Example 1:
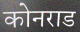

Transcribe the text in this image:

कोनराड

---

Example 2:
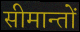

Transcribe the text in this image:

सीमान्तों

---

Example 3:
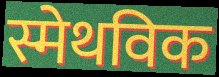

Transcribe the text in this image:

स्मेथविक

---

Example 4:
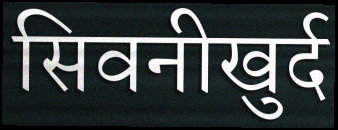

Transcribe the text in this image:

सिवनीखुर्द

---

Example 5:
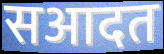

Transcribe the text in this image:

सआदत